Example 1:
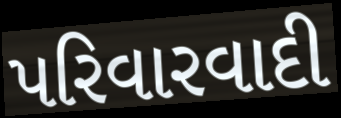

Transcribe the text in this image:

પરિવારવાદી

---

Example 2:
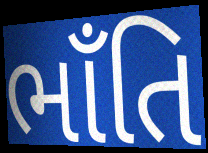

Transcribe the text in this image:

ભાઁતિ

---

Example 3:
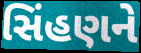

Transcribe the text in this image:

સિંહણને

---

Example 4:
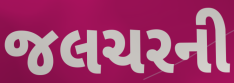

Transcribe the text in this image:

જલચરની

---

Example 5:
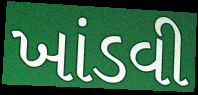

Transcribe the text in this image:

ખાંડવી